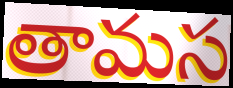
తామస